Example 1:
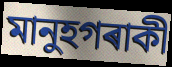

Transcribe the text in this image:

মানুহগৰাকী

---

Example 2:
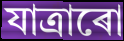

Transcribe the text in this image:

যাত্ৰাৰো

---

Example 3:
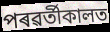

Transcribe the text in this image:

পৰৱৰ্তীকালত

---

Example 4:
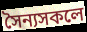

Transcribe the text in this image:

সৈন্যসকলে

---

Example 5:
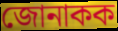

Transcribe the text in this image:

জোনাকক